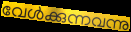
വേൾക്കുന്നവന്നു